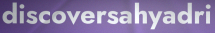
discoversahyadri